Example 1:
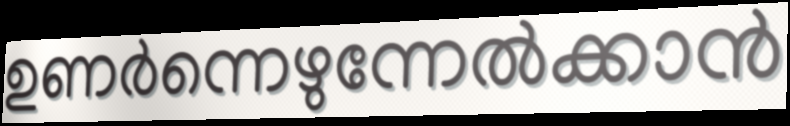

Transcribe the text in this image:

ഉണർന്നെഴുന്നേൽക്കാൻ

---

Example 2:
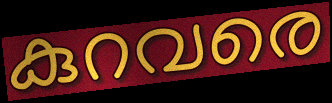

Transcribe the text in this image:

കുറവരെ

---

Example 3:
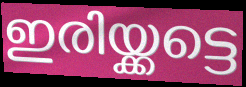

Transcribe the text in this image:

ഇരിയ്ക്കട്ടെ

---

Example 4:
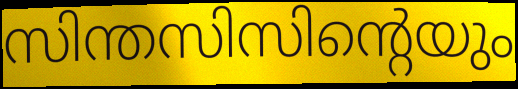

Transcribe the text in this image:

സിന്തസിസിന്റെയും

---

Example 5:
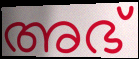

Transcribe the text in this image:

അഭ്